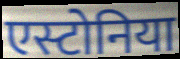
एस्‍टोनिया